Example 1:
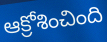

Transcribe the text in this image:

ఆక్రోశించింది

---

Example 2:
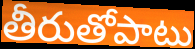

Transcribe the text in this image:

తీరుతోపాటు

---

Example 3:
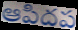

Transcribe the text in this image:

ఆపిదప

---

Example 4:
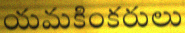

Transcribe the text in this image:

యమకింకరులు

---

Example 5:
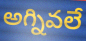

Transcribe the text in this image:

అగ్నివలే